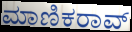
ಮಾಣಿಕರಾವ್